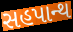
સહપાન્થ